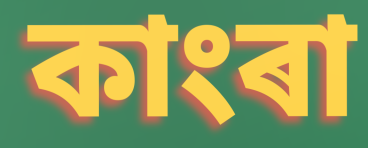
কাংৰা